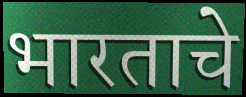
भारताचे